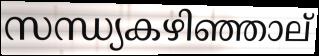
സന്ധ്യകഴിഞ്ഞാല്